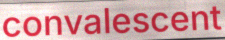
convalescent